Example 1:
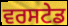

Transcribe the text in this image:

ਵਰਸਟੇਡ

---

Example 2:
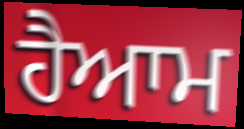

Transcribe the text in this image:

ਹੈਆਮ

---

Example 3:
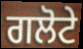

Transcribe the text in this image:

ਗਲੋਟੇ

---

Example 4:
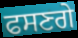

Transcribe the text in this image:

ਫਸਣਗੇ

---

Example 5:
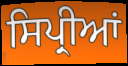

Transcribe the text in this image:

ਸਿਪ੍ਰੀਆਂ